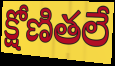
క్షోణితలే